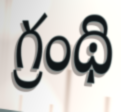
గ్రంథి